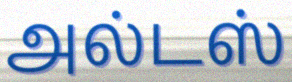
அல்டஸ்